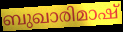
ബുഖാരിമാഷ്